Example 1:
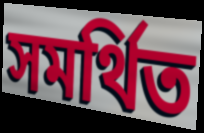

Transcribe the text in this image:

সমৰ্থিত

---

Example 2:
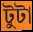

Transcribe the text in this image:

টুটা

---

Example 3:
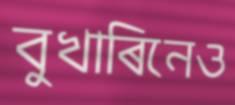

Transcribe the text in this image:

বুখাৰিনেও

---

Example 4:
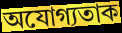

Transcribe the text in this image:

অযোগ্যতাক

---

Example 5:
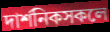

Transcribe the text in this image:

দাৰ্শনিকসকলে